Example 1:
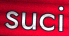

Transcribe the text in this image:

suci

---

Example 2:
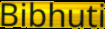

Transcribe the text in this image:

Bibhuti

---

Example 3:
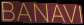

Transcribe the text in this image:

BANAVI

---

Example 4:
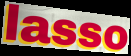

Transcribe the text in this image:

lasso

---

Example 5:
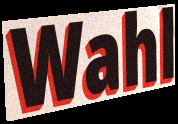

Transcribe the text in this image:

Wahl